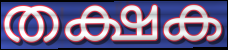
തക്ഷക